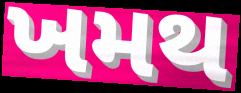
ખમથ